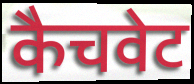
कैचवेट